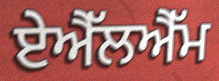
ਏਐੱਲਐੱਮ